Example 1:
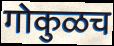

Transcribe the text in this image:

गोकुळच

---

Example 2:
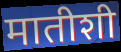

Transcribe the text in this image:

मातीशी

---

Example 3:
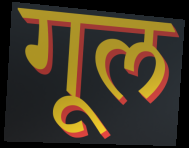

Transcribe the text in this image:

गूल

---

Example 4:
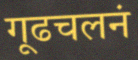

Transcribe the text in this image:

गूढचलनं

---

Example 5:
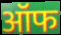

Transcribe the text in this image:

ऑफ